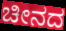
ಚೀನದ